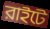
রাইটে